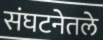
संघटनेतले